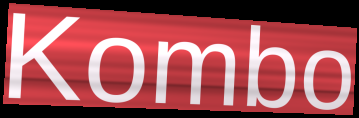
Kombo